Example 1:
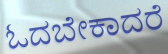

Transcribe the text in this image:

ಓದಬೇಕಾದರೆ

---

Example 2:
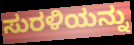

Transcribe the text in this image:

ಸುರಳಿಯನ್ನು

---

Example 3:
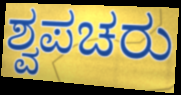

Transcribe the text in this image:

ಶ್ವಪಚರು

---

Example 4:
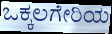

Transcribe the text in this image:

ಒಕ್ಕಲಗೇರಿಯ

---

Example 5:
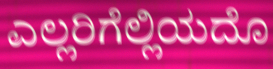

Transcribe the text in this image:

ಎಲ್ಲರಿಗೆಲ್ಲಿಯದೊ